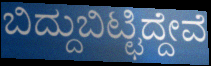
ಬಿದ್ದುಬಿಟ್ಟಿದ್ದೇವೆ